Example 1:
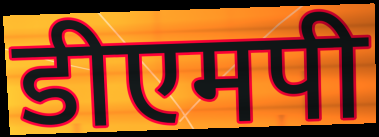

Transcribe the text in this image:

डीएमपी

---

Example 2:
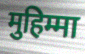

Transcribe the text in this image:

मुहिम्मा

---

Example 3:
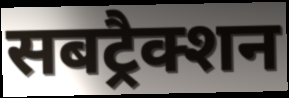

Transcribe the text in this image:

सबट्रैक्शन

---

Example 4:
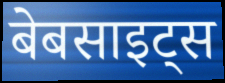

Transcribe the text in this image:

बेबसाइट्स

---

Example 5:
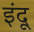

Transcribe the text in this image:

इंदू